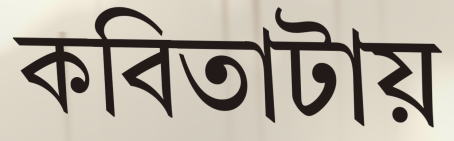
কবিতাটায়